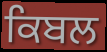
ਕਿਬਲ